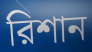
রিশান